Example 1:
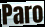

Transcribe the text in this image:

Paro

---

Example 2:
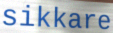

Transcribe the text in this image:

sikkare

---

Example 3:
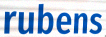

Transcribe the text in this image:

rubens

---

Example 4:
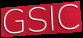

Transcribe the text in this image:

GSIC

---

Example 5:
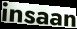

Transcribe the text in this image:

insaan